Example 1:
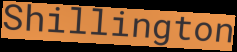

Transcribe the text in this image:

Shillington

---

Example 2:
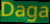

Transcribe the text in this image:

Daga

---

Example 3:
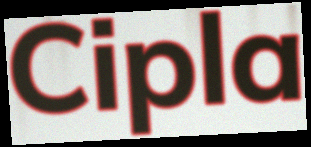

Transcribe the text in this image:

Cipla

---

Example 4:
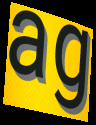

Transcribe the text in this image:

ag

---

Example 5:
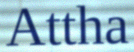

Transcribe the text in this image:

Attha